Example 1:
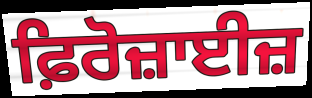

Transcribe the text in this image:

ਫ਼ਿਰੋਜ਼ਾਈਜ਼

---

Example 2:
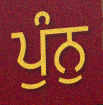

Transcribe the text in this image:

ਪੁੰਨੁ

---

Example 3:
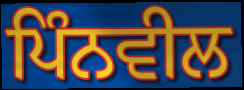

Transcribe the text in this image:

ਪਿੰਨਵੀਲ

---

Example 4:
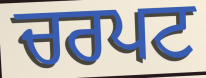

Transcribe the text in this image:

ਚਰਪਟ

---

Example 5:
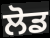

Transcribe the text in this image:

ਲੋਡ